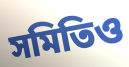
সমিতিও